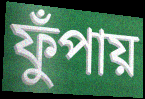
ফুঁপায়